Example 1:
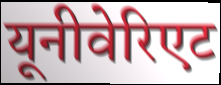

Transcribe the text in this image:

यूनीवेरिएट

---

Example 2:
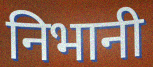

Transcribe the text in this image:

निभानी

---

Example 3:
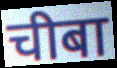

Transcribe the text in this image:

चीबा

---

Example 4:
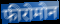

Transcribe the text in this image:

फीरोमोन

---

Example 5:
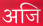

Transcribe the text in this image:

अजि